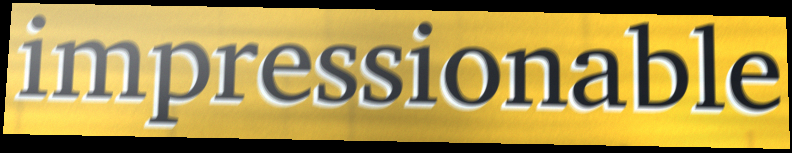
impressionable